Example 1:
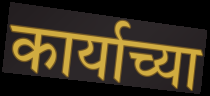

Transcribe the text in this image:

कार्याच्या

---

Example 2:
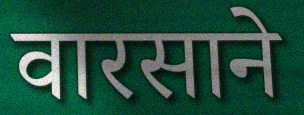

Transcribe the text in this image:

वारसाने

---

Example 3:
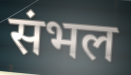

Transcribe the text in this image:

संभल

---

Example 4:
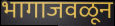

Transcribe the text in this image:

भागाजवळून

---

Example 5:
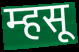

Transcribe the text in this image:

म्हसू